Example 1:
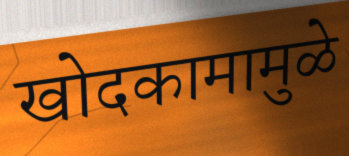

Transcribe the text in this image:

खोदकामामुळे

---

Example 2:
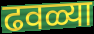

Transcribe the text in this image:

ढवळ्या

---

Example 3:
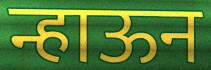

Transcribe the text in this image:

न्हाऊन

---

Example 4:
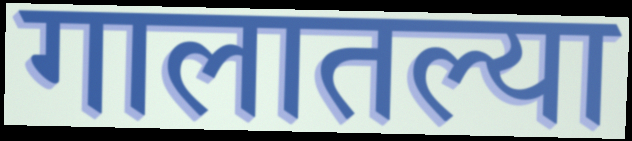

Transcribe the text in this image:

गालातल्या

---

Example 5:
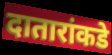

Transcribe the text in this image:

दातारांकडे